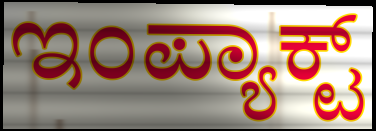
ಇಂಪ್ಯಾಕ್ಟ್